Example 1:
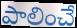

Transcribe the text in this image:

పాలించే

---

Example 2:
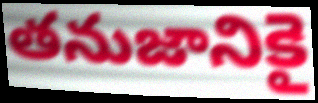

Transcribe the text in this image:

తనుజానికై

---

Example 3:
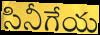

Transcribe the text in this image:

సినీగేయ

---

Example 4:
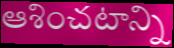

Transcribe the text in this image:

ఆశించటాన్ని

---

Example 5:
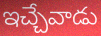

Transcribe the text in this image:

ఇచ్చేవాడు